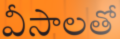
వీసాలతో